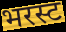
भरस्ट